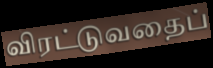
விரட்டுவதைப்